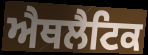
ਐਥਲੈਟਿਕ